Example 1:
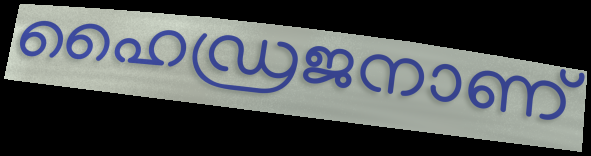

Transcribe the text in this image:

ഹൈഡ്രജനാണ്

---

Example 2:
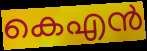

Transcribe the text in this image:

കെഎൻ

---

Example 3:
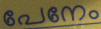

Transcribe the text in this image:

പേനേം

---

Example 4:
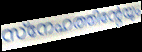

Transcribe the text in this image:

സ്‌നേഹത്തിന്റേയും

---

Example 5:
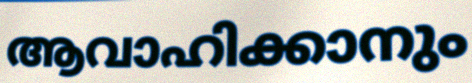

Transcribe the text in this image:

ആവാഹിക്കാനും